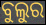
ବୁଲୁର